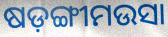
ଷଡ଼ଙ୍ଗୀମଉସା